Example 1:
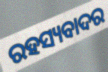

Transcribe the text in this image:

ରହସ୍ୟବାଦର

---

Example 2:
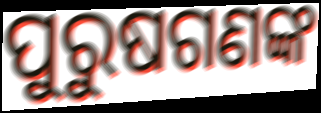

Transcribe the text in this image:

ପୁରୁଷଗଣଙ୍କ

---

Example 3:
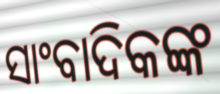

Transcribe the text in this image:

ସାଂବାଦିକଙ୍କ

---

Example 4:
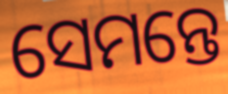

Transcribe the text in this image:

ସେମନ୍ତେ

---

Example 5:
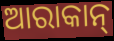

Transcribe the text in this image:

ଆରାକାନ୍